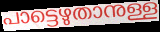
പാട്ടെഴുതാനുള്ള